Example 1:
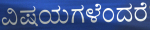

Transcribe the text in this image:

ವಿಷಯಗಳೆಂದರೆ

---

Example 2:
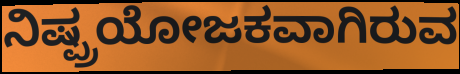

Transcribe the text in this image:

ನಿಷ್ಪ್ರಯೋಜಕವಾಗಿರುವ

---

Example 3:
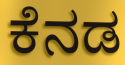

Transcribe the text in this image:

ಕೆನಡ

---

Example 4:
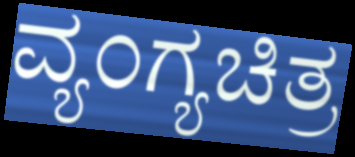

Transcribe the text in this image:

ವ್ಯಂಗ್ಯಚಿತ್ರ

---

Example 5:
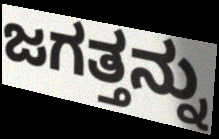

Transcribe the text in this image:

ಜಗತ್ತನ್ನು